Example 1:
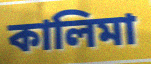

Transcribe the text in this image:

কালিমা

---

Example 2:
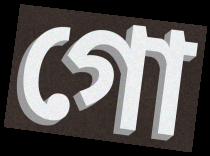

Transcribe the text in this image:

গো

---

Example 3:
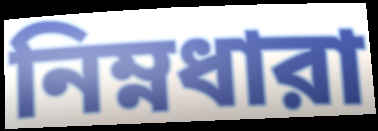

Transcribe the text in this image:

নিম্নধারা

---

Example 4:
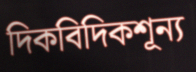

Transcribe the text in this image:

দিকবিদিকশূন্য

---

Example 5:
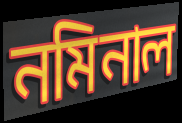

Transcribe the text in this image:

নমিনাল